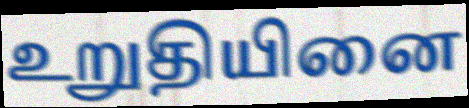
உறுதியினை